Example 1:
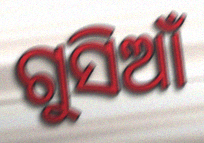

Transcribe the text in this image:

ଗୁସିଆଁ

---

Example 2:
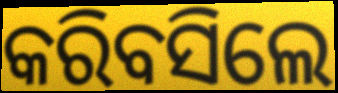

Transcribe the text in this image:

କରିବସିଲେ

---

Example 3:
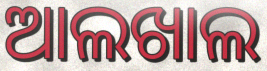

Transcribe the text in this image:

ଆଲଖାଲ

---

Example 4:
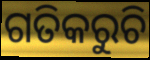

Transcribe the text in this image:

ଗତିକରୁଚି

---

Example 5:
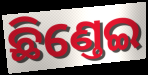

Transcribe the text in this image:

ଛିଣ୍ତେଇ